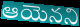
ఆయెనని